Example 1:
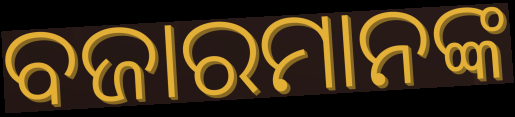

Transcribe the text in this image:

ବଜାରମାନଙ୍କ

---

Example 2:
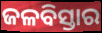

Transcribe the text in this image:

ଜଳବିସ୍ତାର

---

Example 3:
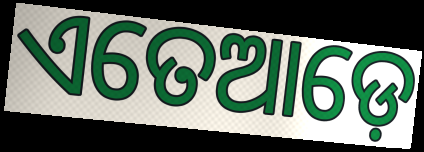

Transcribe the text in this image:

ଏତେଆଡ଼େ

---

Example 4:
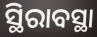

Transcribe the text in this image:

ସ୍ଥିରାବସ୍ଥା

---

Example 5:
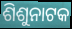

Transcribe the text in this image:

ଶିଶୁନାଟକ